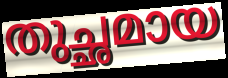
തുച്ഛമായ